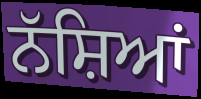
ਨੱਸ਼ਿਆਂ